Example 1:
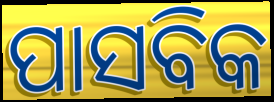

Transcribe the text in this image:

ପାସବିକ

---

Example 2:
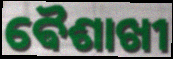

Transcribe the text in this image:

ଵୈଶାଖୀ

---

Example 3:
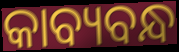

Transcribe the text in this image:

କାବ୍ୟବନ୍ଧ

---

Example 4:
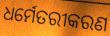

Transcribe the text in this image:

ଧର୍ମେତରୀକରଣ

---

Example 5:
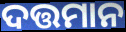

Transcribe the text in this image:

ଦତ୍ତମାନ